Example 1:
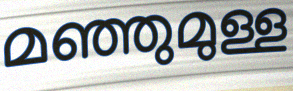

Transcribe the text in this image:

മഞ്ഞുമുള്ള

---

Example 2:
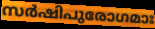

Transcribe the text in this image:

സർഷിപുരോഗമാഃ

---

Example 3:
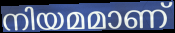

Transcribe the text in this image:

നിയമമാണ്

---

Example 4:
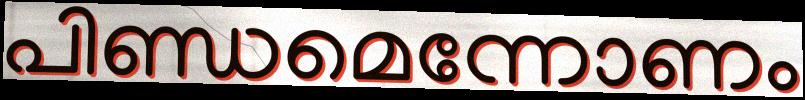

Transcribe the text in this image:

പിണ്ഡമെന്നോണം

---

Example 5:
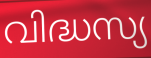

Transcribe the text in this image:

വിദ്ധസ്യ